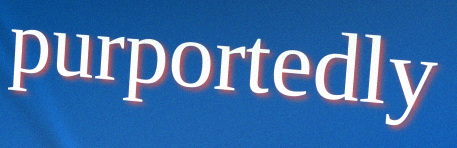
purportedly